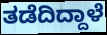
ತಡೆದಿದ್ದಾಳೆ